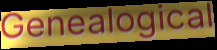
Genealogical